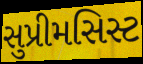
સુપ્રીમસિસ્ટ